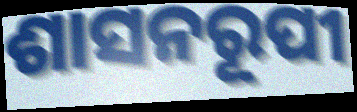
ଶାସନରୂପୀ